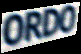
ORDO